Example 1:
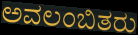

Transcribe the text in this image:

ಅವಲಂಬಿತರು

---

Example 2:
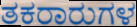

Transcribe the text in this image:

ತಕರಾರುಗಳ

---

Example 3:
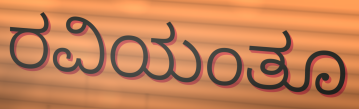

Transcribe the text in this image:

ರವಿಯಂತೂ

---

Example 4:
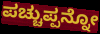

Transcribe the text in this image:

ಪಚ್ಚುಪ್ಪನ್ನೋ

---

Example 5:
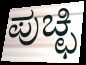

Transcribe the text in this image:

ಪುಚ್ಛಿ